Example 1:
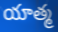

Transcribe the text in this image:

యాత్మ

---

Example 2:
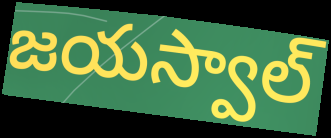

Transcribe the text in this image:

జయస్వాల్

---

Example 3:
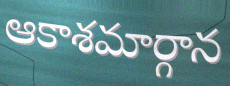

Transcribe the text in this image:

ఆకాశమార్గాన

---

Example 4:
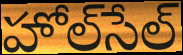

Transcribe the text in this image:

హోల్‌సేల్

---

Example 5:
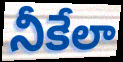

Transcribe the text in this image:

నీకేలా